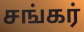
சங்கர்